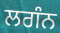
ਲਗੰਨ